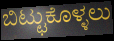
ಬಿಟ್ಟುಕೊಳ್ಳಲು